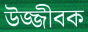
উজ্জীবক